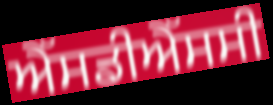
ਐੱਸਡੀਐੱਸਸੀ